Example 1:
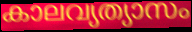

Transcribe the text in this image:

കാലവ്യത്യാസം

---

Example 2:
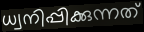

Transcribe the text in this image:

ധ്വനിപ്പിക്കുന്നത്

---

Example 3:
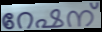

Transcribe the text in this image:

റേഷന്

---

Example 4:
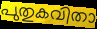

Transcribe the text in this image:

പുതുകവിതാ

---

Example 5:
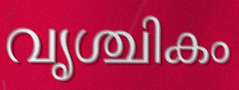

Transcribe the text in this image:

വൃശ്ചികം